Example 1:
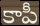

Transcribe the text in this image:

కాపీ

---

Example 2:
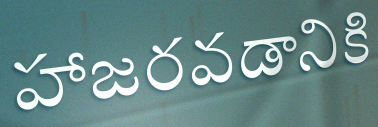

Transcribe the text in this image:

హాజరవడానికి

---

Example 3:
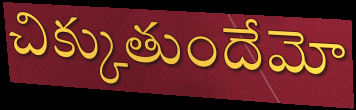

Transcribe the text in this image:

చిక్కుతుందేమో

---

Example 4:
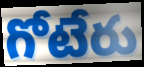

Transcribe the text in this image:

గోటేరు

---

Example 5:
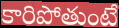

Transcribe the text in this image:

కారిపోతుంటే